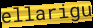
ellarigu